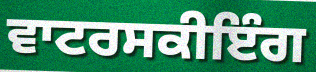
ਵਾਟਰਸਕੀਇੰਗ